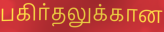
பகிர்தலுக்கான